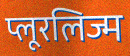
प्लूरलिज्म